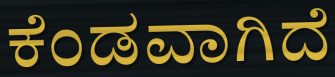
ಕೆಂಡವಾಗಿದೆ